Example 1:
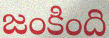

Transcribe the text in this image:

జంకింది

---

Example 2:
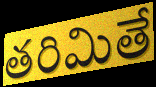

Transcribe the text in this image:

తరిమితే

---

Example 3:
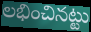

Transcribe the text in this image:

లభించినట్టు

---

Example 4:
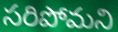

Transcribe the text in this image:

సరిపోమని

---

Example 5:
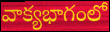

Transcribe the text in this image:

వాక్యభాగంలో